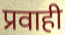
प्रवाही